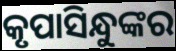
କୃପାସିନ୍ଧୁଙ୍କର